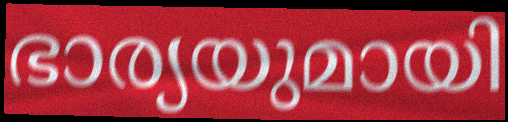
ഭാര്യയുമായി